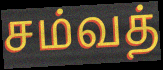
சம்வத்